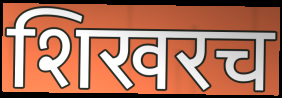
शिखरच